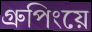
গ্রুপিংয়ে